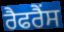
ਰੈਫਰੈਂਸ